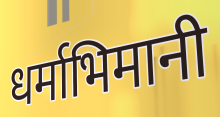
धर्माभिमानी